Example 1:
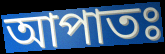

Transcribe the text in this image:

আপাতঃ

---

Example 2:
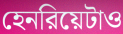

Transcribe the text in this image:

হেনরিয়েটাও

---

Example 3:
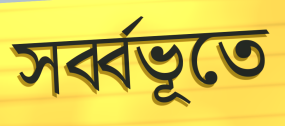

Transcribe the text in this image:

সর্ব্বভূতে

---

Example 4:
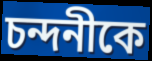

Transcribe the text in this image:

চন্দনীকে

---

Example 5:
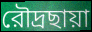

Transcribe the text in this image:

রৌদ্রছায়া